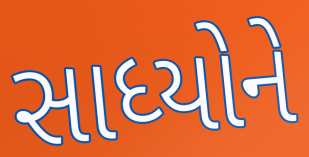
સાધ્યોને